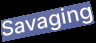
Savaging